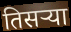
तिसऱ्या